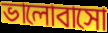
ভালোবাসো